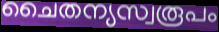
ചൈതന്യസ്വരൂപം